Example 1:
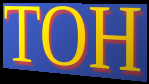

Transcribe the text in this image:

TOH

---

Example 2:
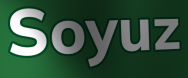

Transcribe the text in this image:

Soyuz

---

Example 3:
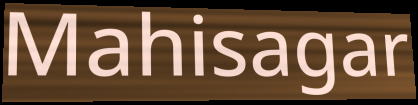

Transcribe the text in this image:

Mahisagar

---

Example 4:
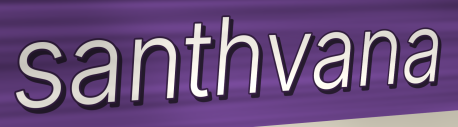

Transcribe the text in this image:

santhvana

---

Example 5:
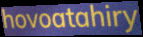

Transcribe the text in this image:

hovoatahiry